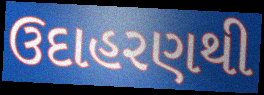
ઉદાહરણથી